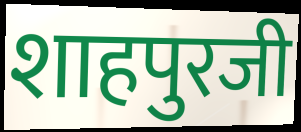
शाहपुरजी